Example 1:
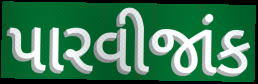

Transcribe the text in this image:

પારવીજાંક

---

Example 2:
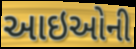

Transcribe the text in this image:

આઇઓની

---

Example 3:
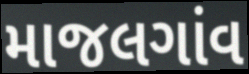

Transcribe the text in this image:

માજલગાંવ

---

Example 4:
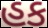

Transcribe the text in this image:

હક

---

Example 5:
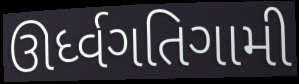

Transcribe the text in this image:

ઊર્ધ્વગતિગામી